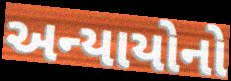
અન્યાયોનો